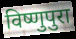
विष्णुपुरा